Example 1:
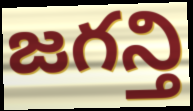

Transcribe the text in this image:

జగన్తి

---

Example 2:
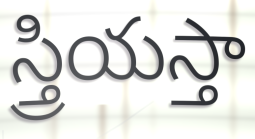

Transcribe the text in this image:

స్త్రియస్తా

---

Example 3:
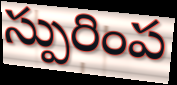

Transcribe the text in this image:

స్పురింప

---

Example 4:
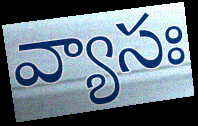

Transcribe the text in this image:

వ్యాసః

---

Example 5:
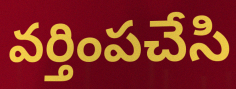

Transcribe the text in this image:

వర్తింపచేసి